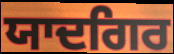
ਯਾਦਗਿਰ